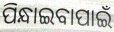
ପିନ୍ଧାଇବାପାଇଁ